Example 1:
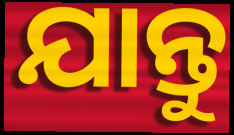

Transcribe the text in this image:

ଯାନ୍ତୁ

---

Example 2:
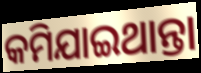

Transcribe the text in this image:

କମିଯାଇଥାନ୍ତା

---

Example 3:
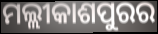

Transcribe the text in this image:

ମଲ୍ଲୀକାଶପୁରର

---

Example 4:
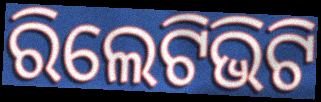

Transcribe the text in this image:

ରିଲେଟିଭିଟି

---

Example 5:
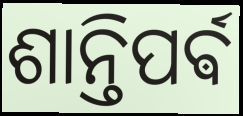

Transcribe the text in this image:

ଶାନ୍ତିପର୍ଵ